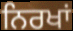
ਨਿਰਖਾਂ